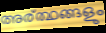
അര്ത്ഥങ്ങളും